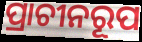
ପ୍ରାଚୀନରୂପ